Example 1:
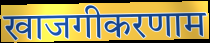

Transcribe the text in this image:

खाजगीकरणाम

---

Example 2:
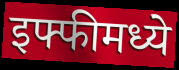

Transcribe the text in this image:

इफ्फीमध्ये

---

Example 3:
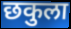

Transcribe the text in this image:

छकुला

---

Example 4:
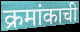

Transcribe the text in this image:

क्रमांकाची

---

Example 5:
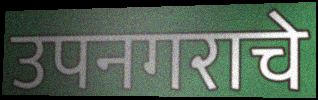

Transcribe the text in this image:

उपनगराचे